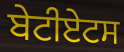
ਬੇਟੀਏਟਸ